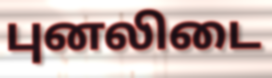
புனலிடை